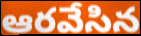
ఆరవేసిన